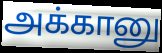
அக்கானு